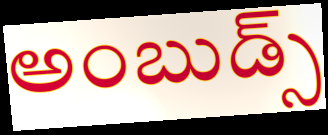
అంబుడ్స్